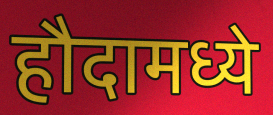
हौदामध्ये